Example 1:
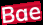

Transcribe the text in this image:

Bae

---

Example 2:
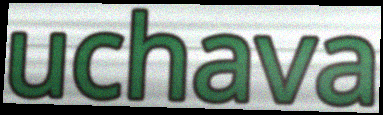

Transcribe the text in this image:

uchava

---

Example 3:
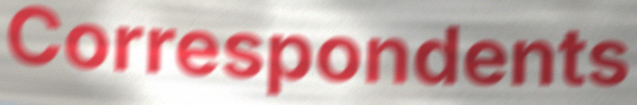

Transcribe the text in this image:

Correspondents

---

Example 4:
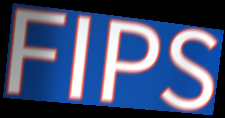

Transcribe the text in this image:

FIPS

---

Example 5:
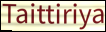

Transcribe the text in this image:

Taittiriya